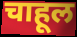
चाहूल